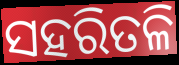
ସହରିତଳି